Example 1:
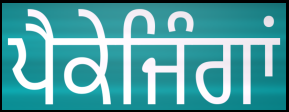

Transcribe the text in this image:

ਪੈਕੇਜਿੰਗਾਂ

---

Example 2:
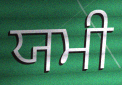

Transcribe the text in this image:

ਯਮੀ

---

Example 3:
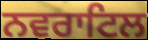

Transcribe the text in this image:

ਨਵਰਾਟਿਲ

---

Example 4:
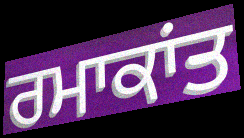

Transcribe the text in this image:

ਰਮਾਕਾਂਤ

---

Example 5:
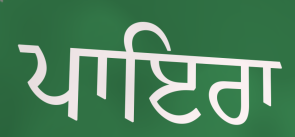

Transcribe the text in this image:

ਪਾਇਰਾ